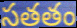
సతతం